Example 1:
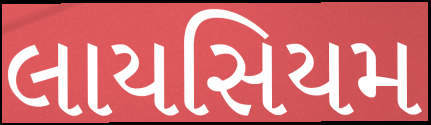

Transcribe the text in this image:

લાયસિયમ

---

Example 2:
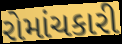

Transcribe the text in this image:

રોમાંચકારી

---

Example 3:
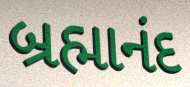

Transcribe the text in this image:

બ્રહ્માનંદ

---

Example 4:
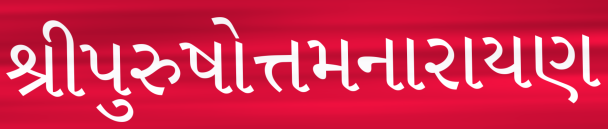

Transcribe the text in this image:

શ્રીપુરુષોત્તમનારાયણ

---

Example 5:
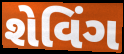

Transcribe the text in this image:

શેવિંગ